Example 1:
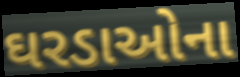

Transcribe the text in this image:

ઘરડાઓના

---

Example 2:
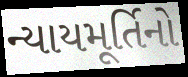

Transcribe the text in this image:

ન્યાયમૂર્તિનો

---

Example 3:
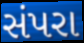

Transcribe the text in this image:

સંપરા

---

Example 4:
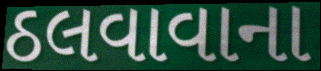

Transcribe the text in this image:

ઠલવાવાના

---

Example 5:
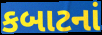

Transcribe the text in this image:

કબાટનાં